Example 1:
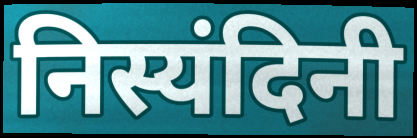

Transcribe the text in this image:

निस्यंदिनी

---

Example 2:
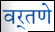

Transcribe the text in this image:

वर्तणे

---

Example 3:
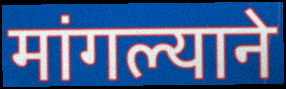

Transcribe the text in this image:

मांगल्याने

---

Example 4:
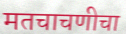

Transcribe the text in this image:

मतचाचणीचा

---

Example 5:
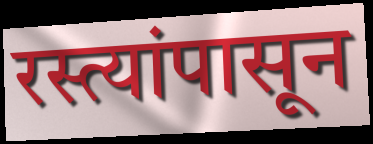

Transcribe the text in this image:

रस्त्यांपासून